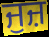
ਜੁਜ਼